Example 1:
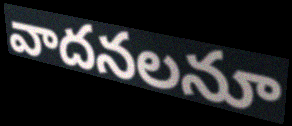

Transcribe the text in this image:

వాదనలనూ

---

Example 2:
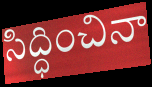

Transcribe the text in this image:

సిద్ధించినా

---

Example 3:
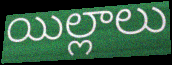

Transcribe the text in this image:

యిల్లాలు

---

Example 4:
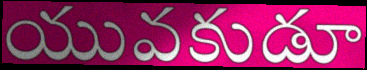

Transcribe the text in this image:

యువకుడూ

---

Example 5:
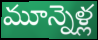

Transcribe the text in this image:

మూన్నెళ్ల